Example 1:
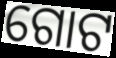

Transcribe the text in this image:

ଗୋଟ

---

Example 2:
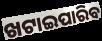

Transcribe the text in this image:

ଖଟାଇପାରିବ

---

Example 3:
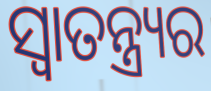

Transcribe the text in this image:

ସ୍ଵାତନ୍ତ୍ର୍ୟର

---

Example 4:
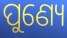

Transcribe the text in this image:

ପୁଣ୍ୟେ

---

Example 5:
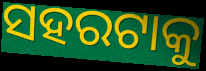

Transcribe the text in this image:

ସହରଟାକୁ